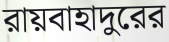
রায়বাহাদুরের